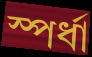
স্পর্ধা